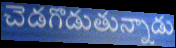
చెడగొడుతున్నాడు